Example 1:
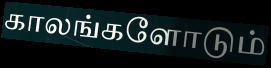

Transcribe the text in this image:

காலங்களோடும்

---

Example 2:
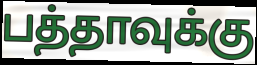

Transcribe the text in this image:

பத்தாவுக்கு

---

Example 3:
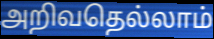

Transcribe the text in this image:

அறிவதெல்லாம்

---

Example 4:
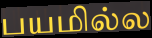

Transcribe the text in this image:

பயமில்ல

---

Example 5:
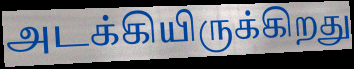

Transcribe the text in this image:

அடக்கியிருக்கிறது